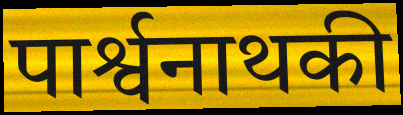
पार्श्वनाथकी